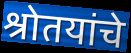
श्रोतयांचे